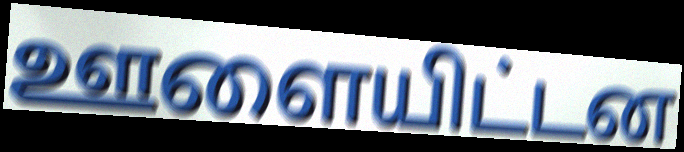
ஊளையிட்டன